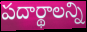
పదార్థాలన్ని